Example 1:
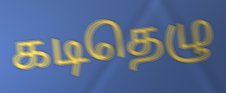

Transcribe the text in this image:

கடிதெழு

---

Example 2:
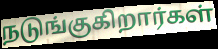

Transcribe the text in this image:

நடுங்குகிறார்கள்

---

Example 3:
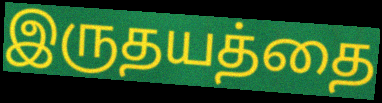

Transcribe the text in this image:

இருதயத்தை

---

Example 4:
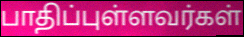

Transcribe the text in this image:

பாதிப்புள்ளவர்கள்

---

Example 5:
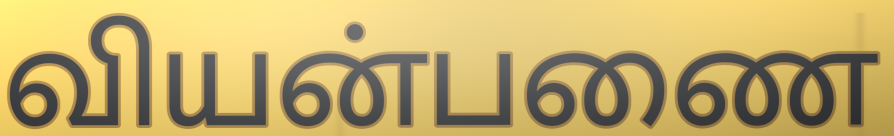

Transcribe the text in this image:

வியன்பணை